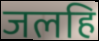
जलहि